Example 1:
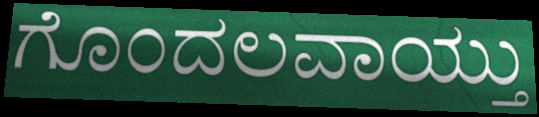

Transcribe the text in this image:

ಗೊಂದಲವಾಯ್ತು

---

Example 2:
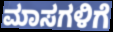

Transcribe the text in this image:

ಮಾಸಗಳಿಗೆ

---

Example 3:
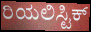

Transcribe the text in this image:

ರಿಯಲಿಸ್ಟಿಕ್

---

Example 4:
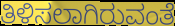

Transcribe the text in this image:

ತಿಳಿಸಲಾಗಿರುವಂತೆ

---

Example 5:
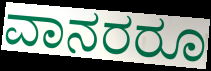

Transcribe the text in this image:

ವಾನರರೂ